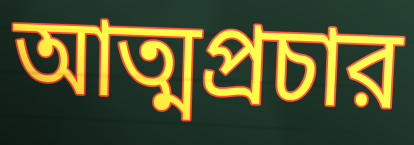
আত্মপ্রচার